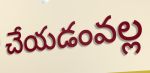
చేయడంవల్ల